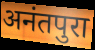
अनंतपुरा